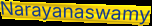
Narayanaswamy